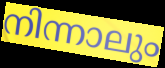
നിന്നാലും